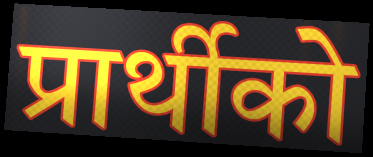
प्रार्थीको